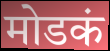
मोडकं